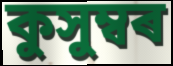
কুসুম্বৰ